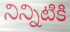
నిన్నిటికి